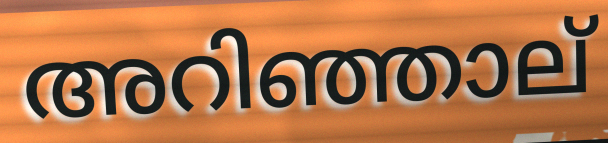
അറിഞ്ഞാല്